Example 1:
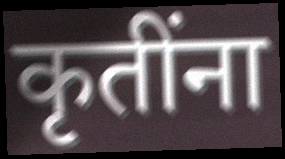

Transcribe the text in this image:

कृतींना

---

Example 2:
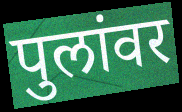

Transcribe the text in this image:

पुलांवर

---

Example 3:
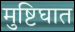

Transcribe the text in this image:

मुष्टिघात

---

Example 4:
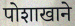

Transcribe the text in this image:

पोशाखाने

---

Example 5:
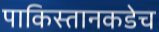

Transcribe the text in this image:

पाकिस्तानकडेच